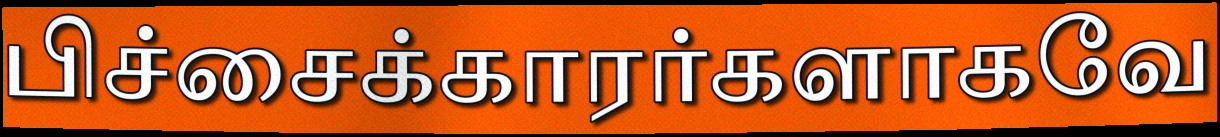
பிச்சைக்காரர்களாகவே